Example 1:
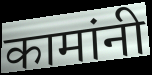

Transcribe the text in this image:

कामांनी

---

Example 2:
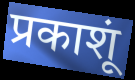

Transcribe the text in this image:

प्रकाशूं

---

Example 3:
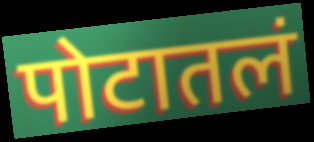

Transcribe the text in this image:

पोटातलं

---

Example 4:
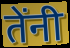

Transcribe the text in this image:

तेंनी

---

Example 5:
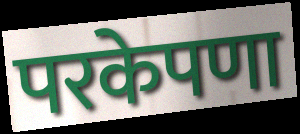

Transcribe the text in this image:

परकेपणा